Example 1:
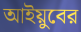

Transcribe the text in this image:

আইয়ুবের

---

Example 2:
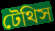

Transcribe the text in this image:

টেথিস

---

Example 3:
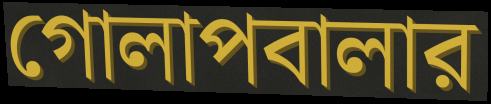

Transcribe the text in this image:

গোলাপবালার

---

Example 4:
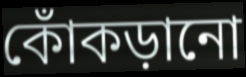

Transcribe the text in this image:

কোঁকড়ানো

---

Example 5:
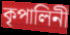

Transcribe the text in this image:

কৃপালিনী